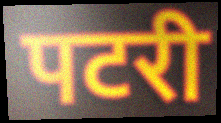
पटरी